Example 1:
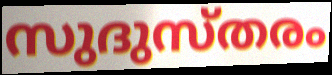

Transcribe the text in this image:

സുദുസ്തരം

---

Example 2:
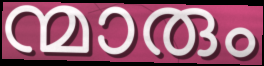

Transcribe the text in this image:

ന്മാരും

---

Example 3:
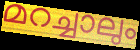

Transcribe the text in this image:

മറച്ചാലും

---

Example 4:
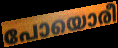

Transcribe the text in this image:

പോയൊരീ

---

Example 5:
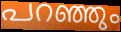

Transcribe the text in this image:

പറഞ്ഞും